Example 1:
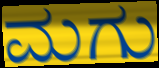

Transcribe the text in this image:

ಮಗು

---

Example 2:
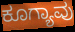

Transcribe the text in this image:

ಕೂಗ್ಯಾವು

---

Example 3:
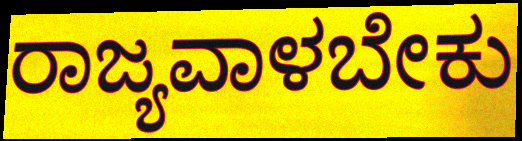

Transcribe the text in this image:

ರಾಜ್ಯವಾಳಬೇಕು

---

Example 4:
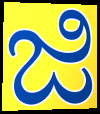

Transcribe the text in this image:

ಜಿ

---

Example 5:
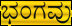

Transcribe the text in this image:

ಭಂಗವು